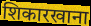
शिकारखाना